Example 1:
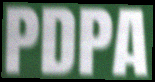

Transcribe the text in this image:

PDPA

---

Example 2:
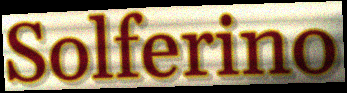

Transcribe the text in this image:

Solferino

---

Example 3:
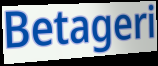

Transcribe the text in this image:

Betageri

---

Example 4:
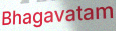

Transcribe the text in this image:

Bhagavatam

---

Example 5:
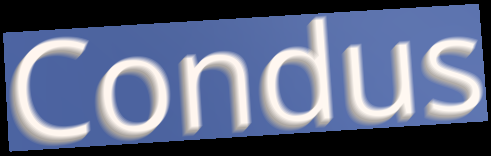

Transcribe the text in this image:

Condus